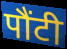
पौंटी